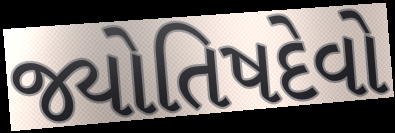
જ્યોતિષદેવો